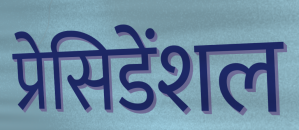
प्रेसिडेंशल